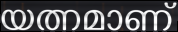
യത്നമാണ്